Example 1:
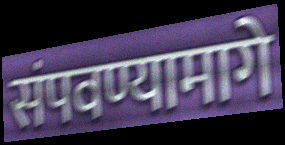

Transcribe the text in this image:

संपवण्यामागे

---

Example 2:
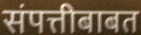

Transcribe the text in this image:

संपत्तीबाबत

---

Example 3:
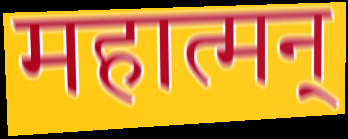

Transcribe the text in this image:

महात्मन्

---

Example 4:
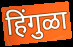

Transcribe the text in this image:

हिंगुळा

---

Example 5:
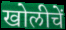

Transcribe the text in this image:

खोलीचें